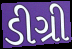
ડીગ્રી